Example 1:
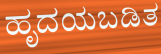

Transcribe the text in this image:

ಹೃದಯಬಡಿತ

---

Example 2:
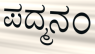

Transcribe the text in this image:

ಪದ್ಮನಂ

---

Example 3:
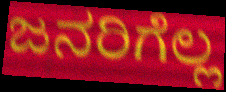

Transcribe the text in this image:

ಜನರಿಗೆಲ್ಲ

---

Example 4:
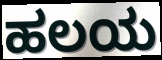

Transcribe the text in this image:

ಹಲಯ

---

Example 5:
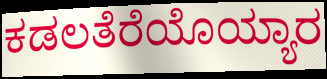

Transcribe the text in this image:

ಕಡಲತೆರೆಯೊಯ್ಯಾರ